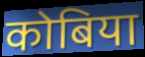
कोबिया